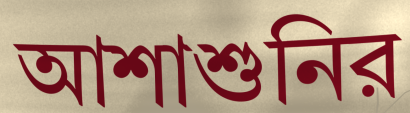
আশাশুনির